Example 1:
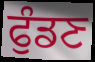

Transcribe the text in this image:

ਫੁੰਡਣ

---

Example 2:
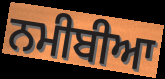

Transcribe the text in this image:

ਨਮੀਬੀਆ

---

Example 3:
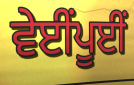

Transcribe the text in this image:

ਵੇਈਂਪੂਈਂ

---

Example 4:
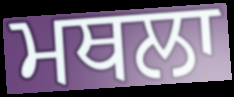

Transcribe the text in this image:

ਮਥਲਾ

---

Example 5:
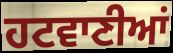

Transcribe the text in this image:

ਹਟਵਾਣੀਆਂ